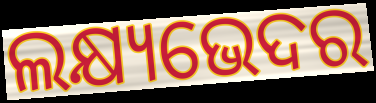
ଲକ୍ଷ୍ୟଭେଦର